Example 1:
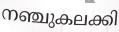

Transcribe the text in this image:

നഞ്ചുകലക്കി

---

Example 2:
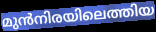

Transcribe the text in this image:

മുൻനിരയിലെത്തിയ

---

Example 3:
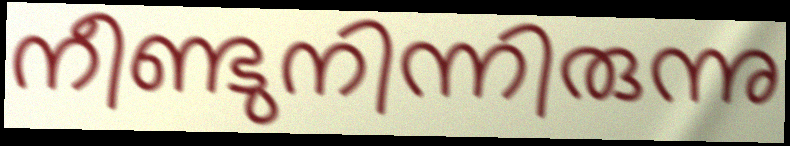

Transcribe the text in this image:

നീണ്ടുനിന്നിരുന്നു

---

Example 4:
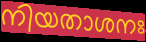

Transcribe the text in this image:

നിയതാശനഃ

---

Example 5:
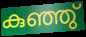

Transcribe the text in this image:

കുഞ്ഞു്